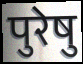
पुरेषु